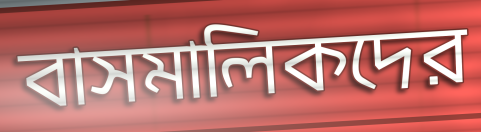
বাসমালিকদের